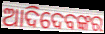
ଆଦିଦେବଙ୍କର